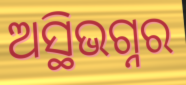
ଅସ୍ଥିଭଗ୍ନର